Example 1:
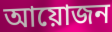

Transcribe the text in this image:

আয়োজন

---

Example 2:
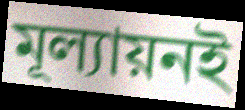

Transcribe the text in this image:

মূল্যায়নই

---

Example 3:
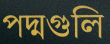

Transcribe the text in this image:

পদ্মগুলি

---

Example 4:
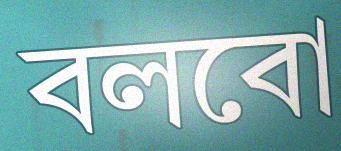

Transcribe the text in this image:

বলবো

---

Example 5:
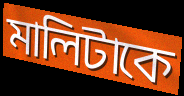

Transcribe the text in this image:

মালিটাকে